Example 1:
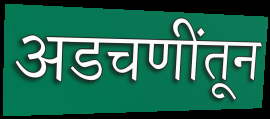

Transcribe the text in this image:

अडचणींतून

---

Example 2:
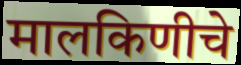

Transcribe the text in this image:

मालकिणीचे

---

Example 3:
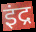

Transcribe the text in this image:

इंद्र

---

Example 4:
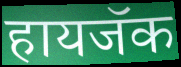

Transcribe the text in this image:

हायजॅक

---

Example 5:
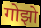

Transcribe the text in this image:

गोझो